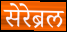
सेरेब्रल